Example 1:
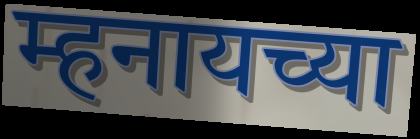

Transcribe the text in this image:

म्हनायच्या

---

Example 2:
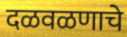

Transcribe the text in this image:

दळवळणाचे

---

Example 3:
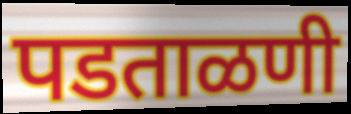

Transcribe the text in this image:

पडताळणी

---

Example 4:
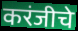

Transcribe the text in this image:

करंजीचे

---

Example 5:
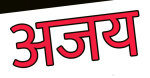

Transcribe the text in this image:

अजय